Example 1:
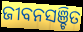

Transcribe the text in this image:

ଜୀବନସଞ୍ଚିତ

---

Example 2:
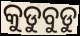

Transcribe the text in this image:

କୁଡୁବୁଡୁ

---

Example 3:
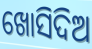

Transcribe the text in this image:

ଖୋସିଦିଅ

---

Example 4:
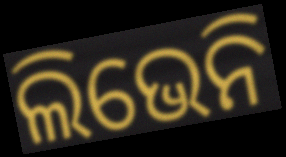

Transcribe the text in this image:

ଲିଭେନି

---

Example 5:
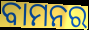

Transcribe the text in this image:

ବାମନର